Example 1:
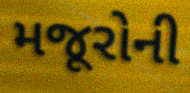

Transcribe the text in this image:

મજૂરોની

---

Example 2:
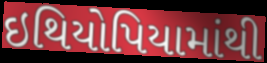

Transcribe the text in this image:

ઇથિયોપિયામાંથી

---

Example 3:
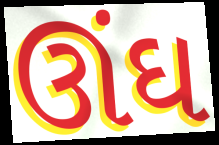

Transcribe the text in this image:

ઊંઘ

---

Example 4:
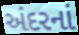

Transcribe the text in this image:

અંદરનાં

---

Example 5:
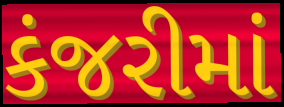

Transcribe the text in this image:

કંજરીમાં